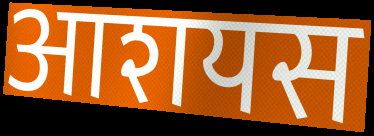
आशयस